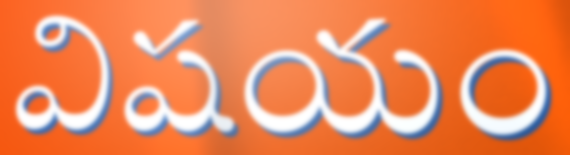
విషయం